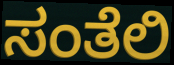
ಸಂತೆಲಿ